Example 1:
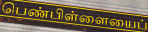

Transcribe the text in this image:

பெண்பிள்ளையைப்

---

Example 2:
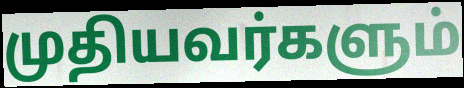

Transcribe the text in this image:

முதியவர்களும்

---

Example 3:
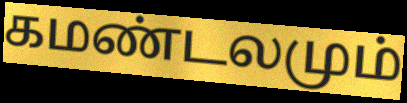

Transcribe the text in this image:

கமண்டலமும்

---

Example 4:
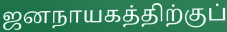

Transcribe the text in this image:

ஜனநாயகத்திற்குப்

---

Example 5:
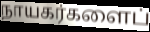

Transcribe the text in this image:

நாயகர்களைப்